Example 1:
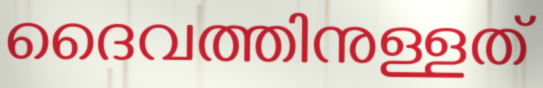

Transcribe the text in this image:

ദൈവത്തിനുള്ളത്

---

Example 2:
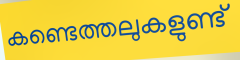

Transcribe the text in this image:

കണ്ടെത്തലുകളുണ്ട്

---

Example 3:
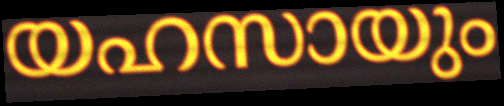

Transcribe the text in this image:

യഹസായും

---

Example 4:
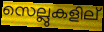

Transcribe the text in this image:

സെല്ലുകളില്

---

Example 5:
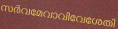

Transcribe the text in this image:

സർവമേവാവിവേശേതി